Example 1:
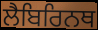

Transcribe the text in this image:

ਲੈਬਿਰਿਨਥ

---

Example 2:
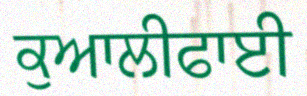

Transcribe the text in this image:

ਕੁਆਲੀਫਾਈ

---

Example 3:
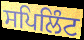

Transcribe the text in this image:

ਸਪਿਲਿੰਟ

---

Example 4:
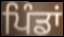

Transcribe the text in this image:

ਪਿੰਡਾਂ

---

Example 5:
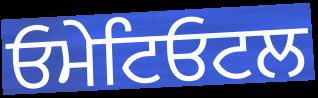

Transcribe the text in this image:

ਓਮੇਟਿਓਟਲ